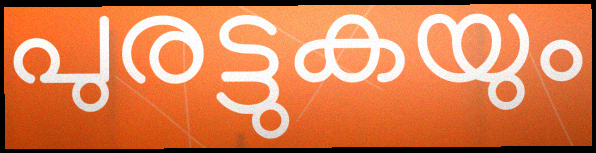
പുരട്ടുകയും